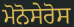
ਮੋਨੋਸੇਰੋਸ